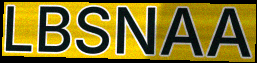
LBSNAA